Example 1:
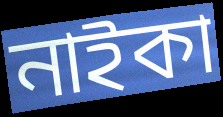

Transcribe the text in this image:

নাইকা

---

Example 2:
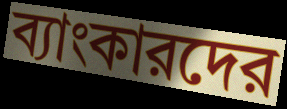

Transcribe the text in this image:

ব্যাংকারদের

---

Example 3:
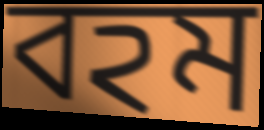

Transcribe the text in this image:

বহম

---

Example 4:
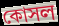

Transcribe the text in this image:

কোসল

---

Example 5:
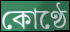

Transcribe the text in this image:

কোণ্ঠে